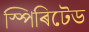
স্পিৰিটেড